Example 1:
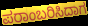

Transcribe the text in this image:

ಪರಾಂಬರಿಸಿದಾಗ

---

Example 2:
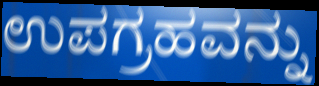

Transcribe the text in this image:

ಉಪಗ್ರಹವನ್ನು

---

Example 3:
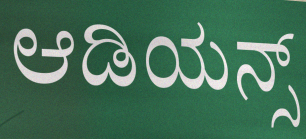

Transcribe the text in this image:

ಆಡಿಯನ್ಸ್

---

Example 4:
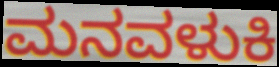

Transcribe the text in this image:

ಮನವಳುಕಿ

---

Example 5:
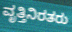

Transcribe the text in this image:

ವೃತ್ತಿನಿರತರು